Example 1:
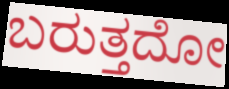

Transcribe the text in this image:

ಬರುತ್ತದೋ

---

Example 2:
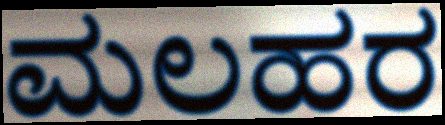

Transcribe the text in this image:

ಮಲಹರ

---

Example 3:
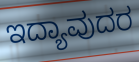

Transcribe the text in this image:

ಇದ್ಯಾವುದರ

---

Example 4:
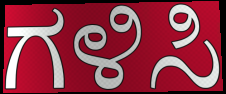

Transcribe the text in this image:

ಗಳಿಸಿ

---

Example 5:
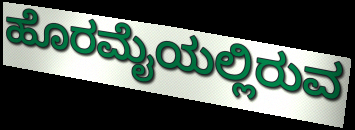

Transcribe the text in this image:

ಹೊರಮೈಯಲ್ಲಿರುವ